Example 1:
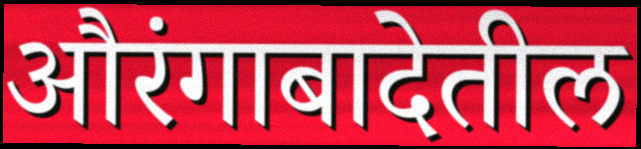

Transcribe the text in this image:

औरंगाबादेतील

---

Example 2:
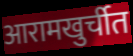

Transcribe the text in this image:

आरामखुर्चीत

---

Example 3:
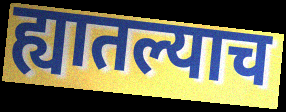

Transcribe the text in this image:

ह्यातल्याच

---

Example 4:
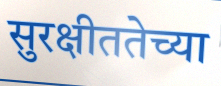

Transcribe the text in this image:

सुरक्षीततेच्या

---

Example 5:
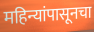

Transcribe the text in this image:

महिन्यांपासूनचा